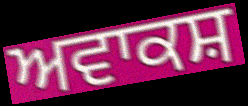
ਅਵਾਕਸ਼